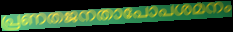
പ്രണതജനതാപോപശമനം